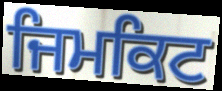
ਜਿਮਕਿਟ